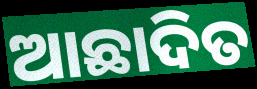
ଆଛାଦିତ